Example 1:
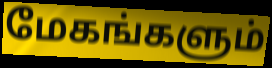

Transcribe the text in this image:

மேகங்களும்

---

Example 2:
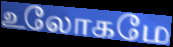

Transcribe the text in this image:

உலோகமே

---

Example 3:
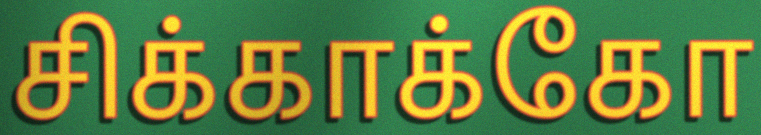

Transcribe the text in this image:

சிக்காக்கோ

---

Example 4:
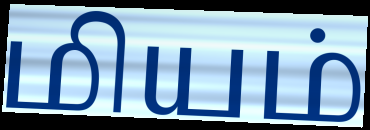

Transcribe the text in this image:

மியம்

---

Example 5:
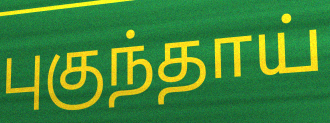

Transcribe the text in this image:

புகுந்தாய்